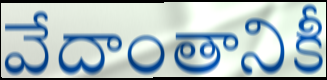
వేదాంతానికీ